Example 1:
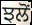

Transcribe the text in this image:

ਝਲੋਂ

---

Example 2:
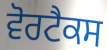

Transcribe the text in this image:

ਵੋਰਟੈਕਸ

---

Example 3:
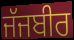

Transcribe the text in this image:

ਜੱਜਬੀਰ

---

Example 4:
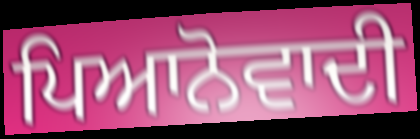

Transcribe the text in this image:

ਪਿਆਨੋਵਾਦੀ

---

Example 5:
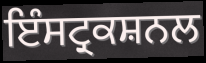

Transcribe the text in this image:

ਇੰਸਟ੍ਰਕਸ਼ਨਲ